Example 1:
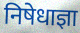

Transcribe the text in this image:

निषेधाज्ञा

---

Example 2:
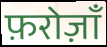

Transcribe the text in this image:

फ़रोज़ाँ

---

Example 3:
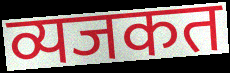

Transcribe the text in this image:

व्यजकत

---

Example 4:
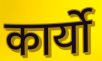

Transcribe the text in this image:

कार्यो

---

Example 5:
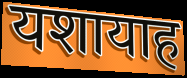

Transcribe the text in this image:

यशायाह